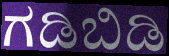
ಗಡಿಬಿಡಿ